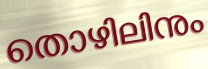
തൊഴിലിനും